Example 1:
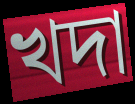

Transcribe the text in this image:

খদা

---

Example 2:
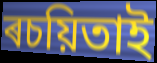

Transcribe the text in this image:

ৰচয়িতাই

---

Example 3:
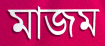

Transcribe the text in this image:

মাজম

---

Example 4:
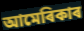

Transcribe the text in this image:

আমেৰিকাৰ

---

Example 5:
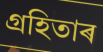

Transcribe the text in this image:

গ্ৰহিতাৰ